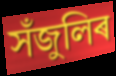
সঁজুলিৰ